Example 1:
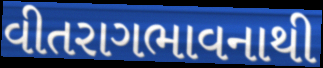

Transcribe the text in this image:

વીતરાગભાવનાથી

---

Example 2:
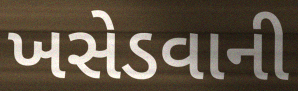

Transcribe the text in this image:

ખસેડવાની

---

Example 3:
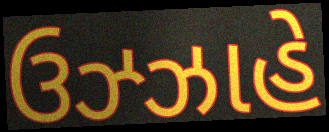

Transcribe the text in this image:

ઉઝ્ઝાહે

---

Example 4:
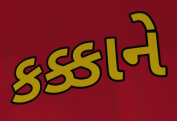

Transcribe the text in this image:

કક્કાને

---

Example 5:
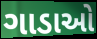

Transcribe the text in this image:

ગાડાઓ